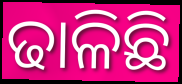
ଢାଳିଛି